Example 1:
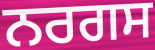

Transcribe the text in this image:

ਨਰਗਸ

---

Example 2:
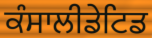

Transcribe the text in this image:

ਕੰਸਾਲੀਡੇਟਿਡ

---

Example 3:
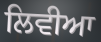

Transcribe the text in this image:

ਲਿਵੀਆ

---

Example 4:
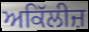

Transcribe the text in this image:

ਅਕਿੱਲੀਜ਼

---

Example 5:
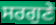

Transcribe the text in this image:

ਸਰਗੁਣੇ